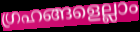
ഗ്രഹങ്ങളെല്ലാം